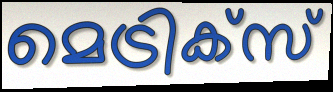
മെട്രിക്സ്